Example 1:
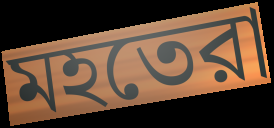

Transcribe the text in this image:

মহতেরা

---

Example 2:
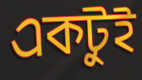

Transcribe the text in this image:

একটুই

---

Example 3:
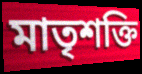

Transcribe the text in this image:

মাতৃশক্তি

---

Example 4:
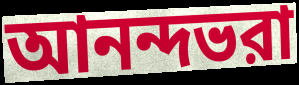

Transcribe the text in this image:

আনন্দভরা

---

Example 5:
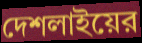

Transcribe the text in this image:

দেশলাইয়ের